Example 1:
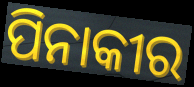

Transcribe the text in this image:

ପିନାକୀର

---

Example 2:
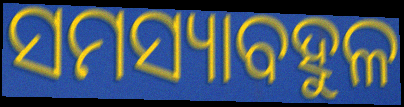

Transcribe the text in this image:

ସମସ୍ୟାବହୁଳ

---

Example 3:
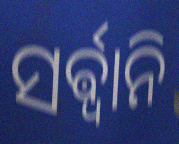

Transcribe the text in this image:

ସର୍ଵ୍ଵାନି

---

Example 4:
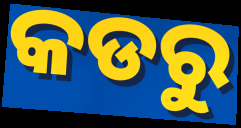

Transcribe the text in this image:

କଡରୁ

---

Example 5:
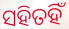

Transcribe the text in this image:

ସହିତହିଁ